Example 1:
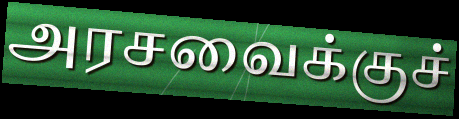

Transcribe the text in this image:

அரசவைக்குச்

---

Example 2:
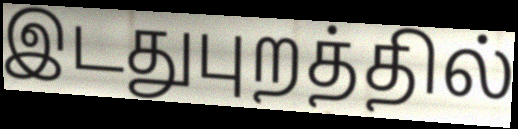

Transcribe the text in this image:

இடதுபுறத்தில்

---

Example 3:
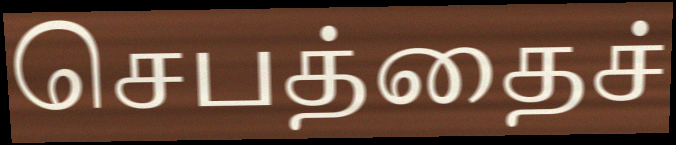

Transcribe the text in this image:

செபத்தைச்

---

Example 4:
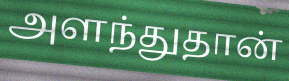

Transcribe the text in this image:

அளந்துதான்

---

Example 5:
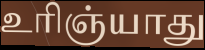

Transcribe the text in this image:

உரிஞ்யாது